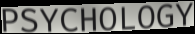
PSYCHOLOGY